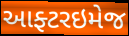
આફ્ટરઇમેજ